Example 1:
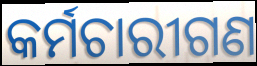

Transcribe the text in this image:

କର୍ମଚାରୀଗଣ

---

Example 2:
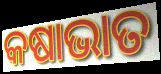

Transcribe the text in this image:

କଷାଭାତ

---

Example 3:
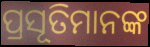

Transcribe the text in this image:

ପ୍ରସୂତିମାନଙ୍କ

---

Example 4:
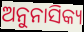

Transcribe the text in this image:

ଅନୁନାସିକ୍ୟ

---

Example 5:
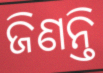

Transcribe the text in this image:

ଜିଣନ୍ତି